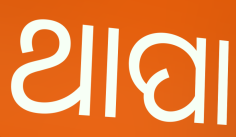
ଥାପା